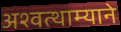
अश्वत्थाम्याने